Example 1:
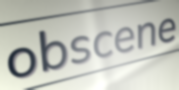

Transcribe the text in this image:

obscene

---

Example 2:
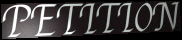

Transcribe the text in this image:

PETITION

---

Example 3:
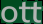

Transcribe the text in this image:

ott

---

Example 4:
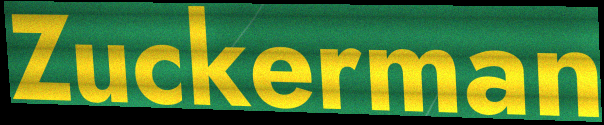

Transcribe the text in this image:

Zuckerman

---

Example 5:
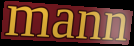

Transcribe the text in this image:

mann